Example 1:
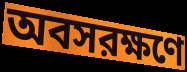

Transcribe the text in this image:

অবসরক্ষণে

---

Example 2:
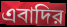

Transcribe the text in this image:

এবাদির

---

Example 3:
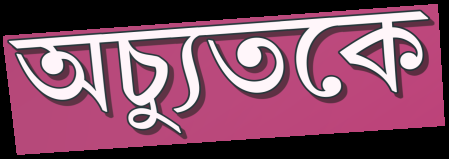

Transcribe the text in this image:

অচ্যুতকে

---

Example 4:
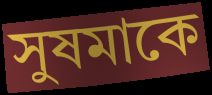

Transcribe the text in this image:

সুষমাকে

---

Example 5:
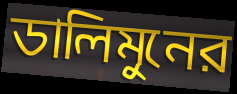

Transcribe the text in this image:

ডালিমুনের